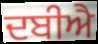
ਦਬੀਐ